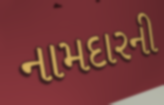
નામદારની